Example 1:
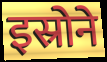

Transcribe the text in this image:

इस्रोने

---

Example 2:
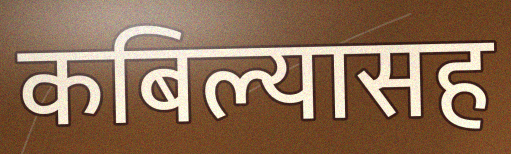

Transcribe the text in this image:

कबिल्यासह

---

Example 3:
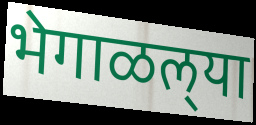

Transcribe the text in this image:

भेगाळल्या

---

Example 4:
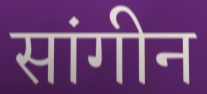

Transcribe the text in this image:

सांगीन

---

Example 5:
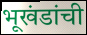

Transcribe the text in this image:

भूखंडांची